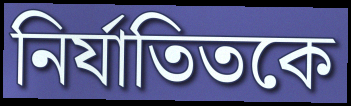
নির্যাতিতকে